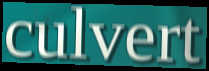
culvert